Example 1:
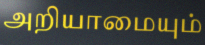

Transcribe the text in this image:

அறியாமையும்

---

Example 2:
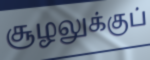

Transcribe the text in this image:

சூழலுக்குப்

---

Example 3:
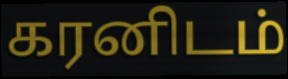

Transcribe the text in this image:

கரனிடம்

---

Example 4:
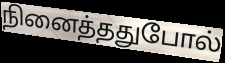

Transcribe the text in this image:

நினைத்ததுபோல்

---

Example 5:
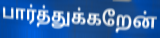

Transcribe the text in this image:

பார்த்துக்கறேன்